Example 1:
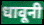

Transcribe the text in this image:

धावूनी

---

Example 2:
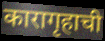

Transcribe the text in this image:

कारागृहाची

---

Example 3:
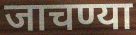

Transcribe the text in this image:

जाचण्या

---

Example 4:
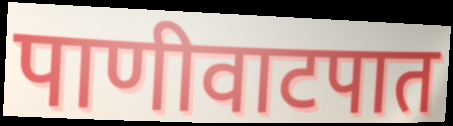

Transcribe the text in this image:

पाणीवाटपात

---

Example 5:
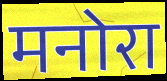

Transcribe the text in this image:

मनोरा